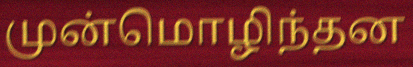
முன்மொழிந்தன